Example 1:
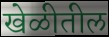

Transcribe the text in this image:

खेळीतील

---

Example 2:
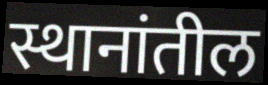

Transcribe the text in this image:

स्थानांतील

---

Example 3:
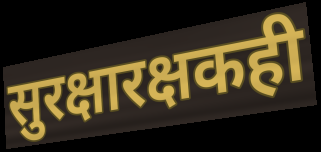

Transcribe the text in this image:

सुरक्षारक्षकही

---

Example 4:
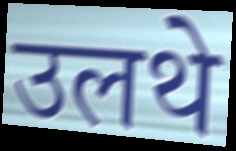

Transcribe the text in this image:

उलथे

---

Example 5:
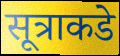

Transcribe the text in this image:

सूत्राकडे